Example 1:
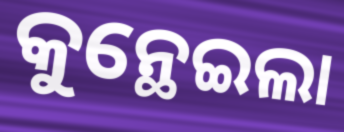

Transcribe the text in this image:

କୁନ୍ଥେଇଲା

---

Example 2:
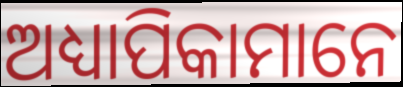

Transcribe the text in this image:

ଅଧ୍ୟାପିକାମାନେ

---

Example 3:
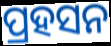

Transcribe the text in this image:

ପ୍ରହସନ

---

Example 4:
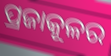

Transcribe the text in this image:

ପ୍ରଜାକୂଳର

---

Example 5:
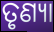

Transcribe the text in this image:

ତୃଣ୍ୟା